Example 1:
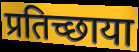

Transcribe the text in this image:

प्रतिच्छाया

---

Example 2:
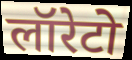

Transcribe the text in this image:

लॉरेटो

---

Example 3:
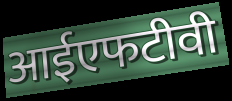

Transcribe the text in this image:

आईएफटीवी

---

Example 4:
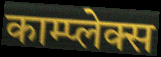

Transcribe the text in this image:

काम्प्लेक्स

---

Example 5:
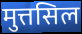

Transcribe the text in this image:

मुत्तसिल